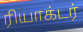
ரியாக்டர்